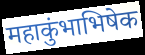
महाकुंभाभिषेक